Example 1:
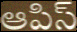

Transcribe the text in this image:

ఆపిస్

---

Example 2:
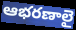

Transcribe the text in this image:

ఆభరణాలై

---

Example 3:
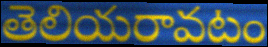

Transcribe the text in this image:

తెలియరావటం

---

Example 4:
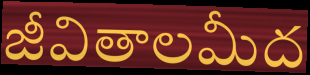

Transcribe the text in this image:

జీవితాలమీద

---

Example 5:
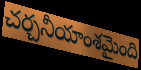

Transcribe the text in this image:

చర్చనీయాంశమైంది